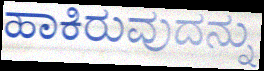
ಹಾಕಿರುವುದನ್ನು